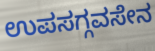
ಉಪಸಗ್ಗವಸೇನ